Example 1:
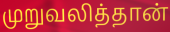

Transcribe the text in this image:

முறுவலித்தான்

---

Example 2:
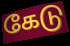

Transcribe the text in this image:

கேடு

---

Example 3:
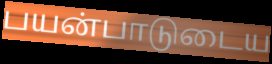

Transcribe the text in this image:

பயன்பாடுடைய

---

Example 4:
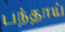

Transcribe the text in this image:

பந்தாய்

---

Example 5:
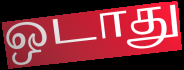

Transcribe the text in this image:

ஒடாது